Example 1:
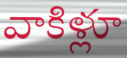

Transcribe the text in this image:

వాకిళ్లూ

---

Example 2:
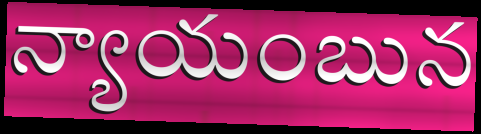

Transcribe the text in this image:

న్యాయంబున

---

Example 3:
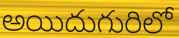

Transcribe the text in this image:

అయిదుగురిలో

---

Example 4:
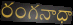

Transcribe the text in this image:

రంగనాధా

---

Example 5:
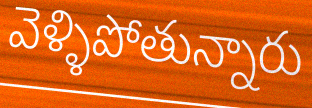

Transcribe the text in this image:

వెళ్ళిపోతున్నారు